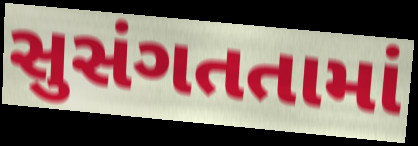
સુસંગતતામાં